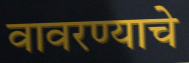
वावरण्याचे